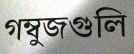
গম্বুজগুলি